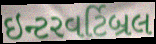
ઇન્ટરવર્ટિબ્રલ